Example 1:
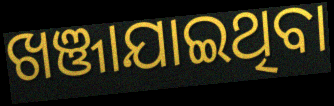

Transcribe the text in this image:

ଖଞ୍ଜାଯାଇଥିବା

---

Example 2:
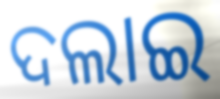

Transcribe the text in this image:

ଦଲାଇ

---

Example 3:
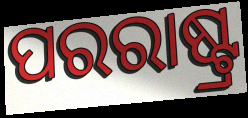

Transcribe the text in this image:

ପରରାଷ୍ଟ୍ର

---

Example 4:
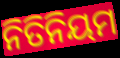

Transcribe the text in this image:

ନିତିନିୟମ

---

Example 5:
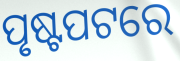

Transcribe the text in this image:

ପୃଷ୍ଟପଟରେ